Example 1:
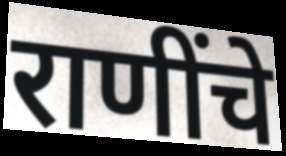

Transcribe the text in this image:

राणींचे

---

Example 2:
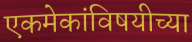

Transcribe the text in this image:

एकमेकांविषयीच्या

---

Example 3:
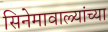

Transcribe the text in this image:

सिनेमावाल्यांच्या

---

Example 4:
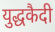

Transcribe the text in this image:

युद्धकैदी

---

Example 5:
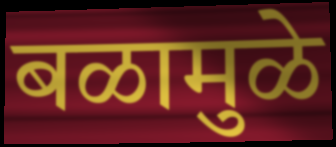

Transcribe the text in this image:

बळामुळे